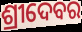
ଶ୍ରୀଦେବର